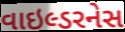
વાઇલ્ડરનેસ